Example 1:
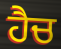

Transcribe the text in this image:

ਹੈਚ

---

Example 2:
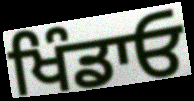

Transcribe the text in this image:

ਖਿੰਡਾਓ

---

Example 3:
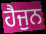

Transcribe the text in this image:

ਹੈਜੁਨ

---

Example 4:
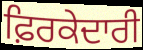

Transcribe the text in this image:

ਫ਼ਿਰਕੇਦਾਰੀ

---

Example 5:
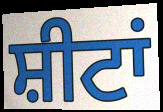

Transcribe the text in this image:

ਸ਼ੀਟਾਂ